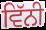
ਵਿੱਨੀ